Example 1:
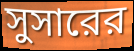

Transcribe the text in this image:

সুসারের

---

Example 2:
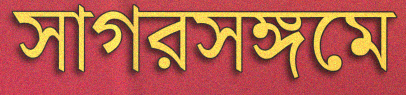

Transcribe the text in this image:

সাগরসঙ্গমে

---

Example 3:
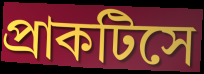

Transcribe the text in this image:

প্রাকটিসে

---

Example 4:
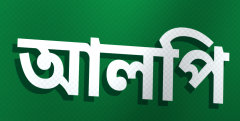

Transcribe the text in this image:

আলপি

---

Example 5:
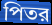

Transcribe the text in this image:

পিতর